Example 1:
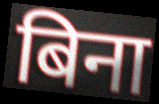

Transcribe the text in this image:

बिना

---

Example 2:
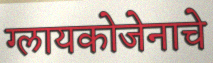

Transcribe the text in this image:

ग्लायकोजेनाचे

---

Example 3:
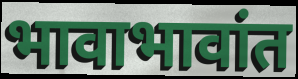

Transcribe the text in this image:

भावाभावांत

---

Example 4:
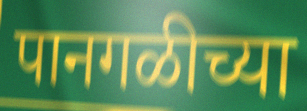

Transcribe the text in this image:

पानगळीच्या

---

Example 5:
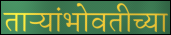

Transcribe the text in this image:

ताऱ्यांभोवतीच्या